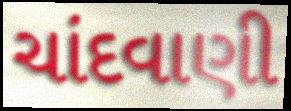
ચાંદવાણી